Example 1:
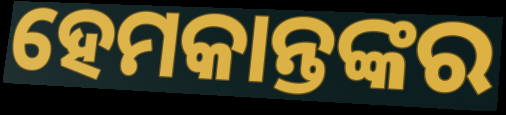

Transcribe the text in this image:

ହେମକାନ୍ତଙ୍କର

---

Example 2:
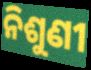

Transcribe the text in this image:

ନିଶୁଣୀ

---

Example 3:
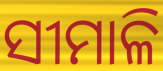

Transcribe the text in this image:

ସୀମାଳି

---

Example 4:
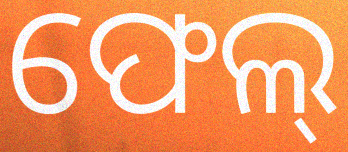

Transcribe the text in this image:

ଫେଲ୍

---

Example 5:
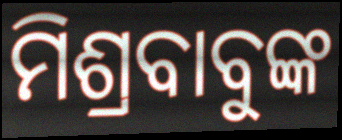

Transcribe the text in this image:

ମିଶ୍ରବାବୁଙ୍କ